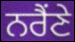
ਨਰੈਂਣੇ